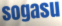
sogasu